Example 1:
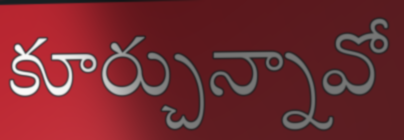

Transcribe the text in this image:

కూర్చున్నావో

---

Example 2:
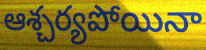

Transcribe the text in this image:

ఆశ్చర్యపోయినా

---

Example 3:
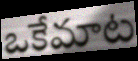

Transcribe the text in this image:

ఒకేమాట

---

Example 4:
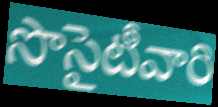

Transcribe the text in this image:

సొసైటీవారి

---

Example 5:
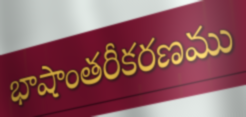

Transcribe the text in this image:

భాషాంతరీకరణము